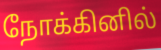
நோக்கினில்